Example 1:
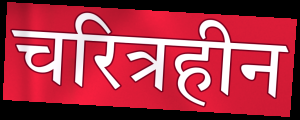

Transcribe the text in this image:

चरित्रहीन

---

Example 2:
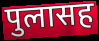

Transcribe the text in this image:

पुलासह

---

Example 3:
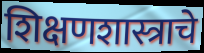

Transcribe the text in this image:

शिक्षणशास्त्राचे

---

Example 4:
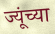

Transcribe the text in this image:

ज्यूंच्या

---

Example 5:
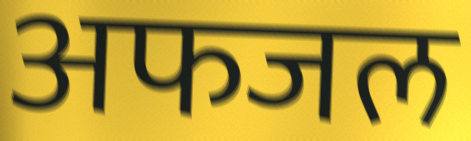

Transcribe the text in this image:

अफजल